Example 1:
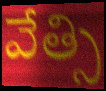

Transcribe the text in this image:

వేత్సి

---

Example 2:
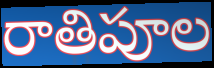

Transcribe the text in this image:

రాతిపూల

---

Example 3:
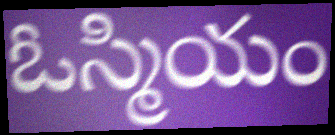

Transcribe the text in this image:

ఓస్మియం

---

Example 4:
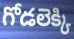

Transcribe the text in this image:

గోడలెక్కి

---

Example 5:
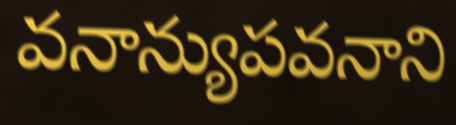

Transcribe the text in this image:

వనాన్యుపవనాని